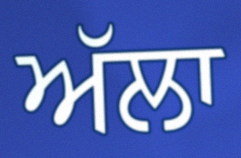
ਅੱਲਾ